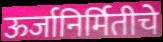
ऊर्जानिर्मितीचे